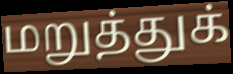
மறுத்துக்